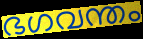
ഭഗവന്തം